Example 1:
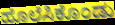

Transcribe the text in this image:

ಹೊಲೆಸಿಕೊಂಡು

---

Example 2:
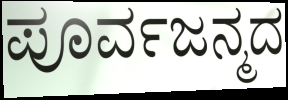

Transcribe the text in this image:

ಪೂರ್ವಜನ್ಮದ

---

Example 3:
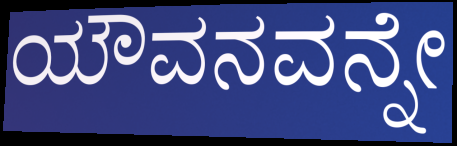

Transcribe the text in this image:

ಯೌವನವನ್ನೇ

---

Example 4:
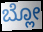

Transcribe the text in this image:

ಬ್ಲೋ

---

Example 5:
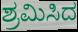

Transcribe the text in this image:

ಶ್ರಮಿಸಿದ